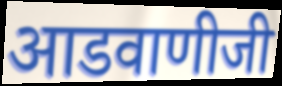
आडवाणीजी